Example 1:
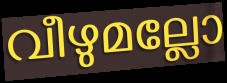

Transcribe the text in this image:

വീഴുമല്ലോ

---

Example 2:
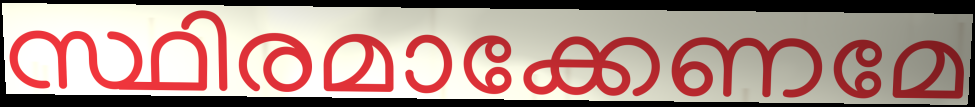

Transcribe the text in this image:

സ്ഥിരമാക്കേണമേ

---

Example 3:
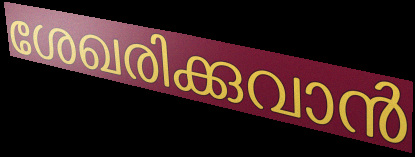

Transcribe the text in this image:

ശേഖരിക്കുവാൻ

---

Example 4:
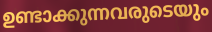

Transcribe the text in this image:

ഉണ്ടാക്കുന്നവരുടെയും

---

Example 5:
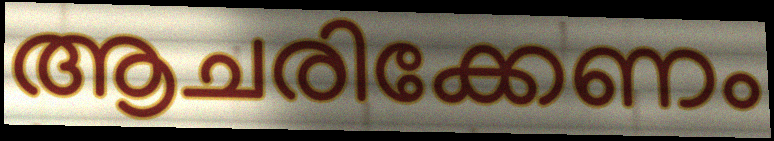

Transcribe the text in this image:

ആചരിക്കേണം